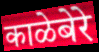
काळेबेरे